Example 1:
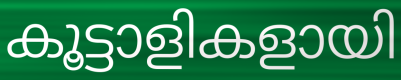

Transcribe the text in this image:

കൂട്ടാളികളായി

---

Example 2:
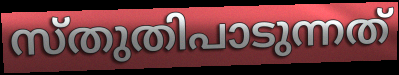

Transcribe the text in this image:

സ്തുതിപാടുന്നത്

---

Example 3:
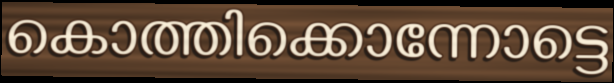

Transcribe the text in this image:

കൊത്തിക്കൊന്നോട്ടെ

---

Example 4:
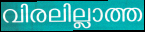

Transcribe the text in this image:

വിരലില്ലാത്ത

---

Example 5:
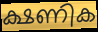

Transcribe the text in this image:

ക്ഷണിക